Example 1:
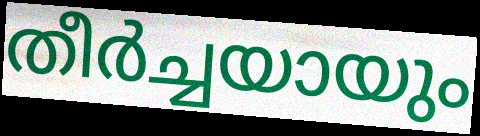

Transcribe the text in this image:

തീർച്ചയായും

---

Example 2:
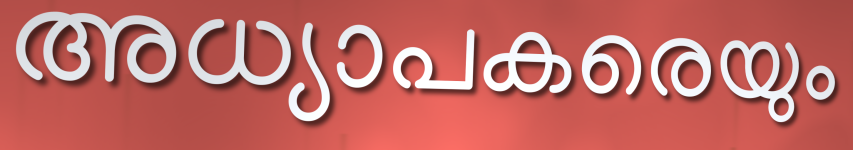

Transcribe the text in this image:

അധ്യാപകരെയും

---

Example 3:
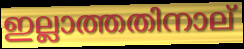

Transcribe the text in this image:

ഇല്ലാത്തതിനാല്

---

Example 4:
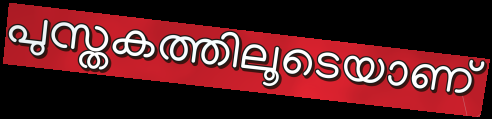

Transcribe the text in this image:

പുസ്തകത്തിലൂടെയാണ്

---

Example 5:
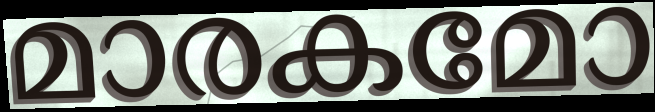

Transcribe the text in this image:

മാരകമോ